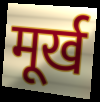
मूर्ख